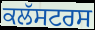
ਕਲੱਸਟਰਸ